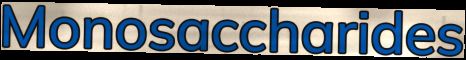
Monosaccharides